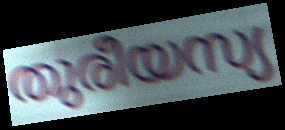
തുരീയസ്യ